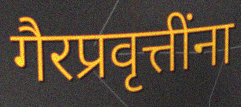
गैरप्रवृत्तींना